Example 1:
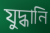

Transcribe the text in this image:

যুদ্ধানি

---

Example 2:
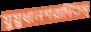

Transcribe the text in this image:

যুয়ুধানশরার্দিতম্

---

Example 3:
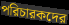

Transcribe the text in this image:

পরিচারকদের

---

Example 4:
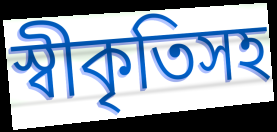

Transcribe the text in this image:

স্বীকৃতিসহ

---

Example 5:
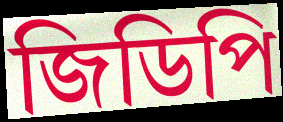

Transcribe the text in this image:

জিডিপি